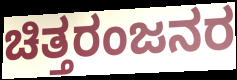
ಚಿತ್ತರಂಜನರ